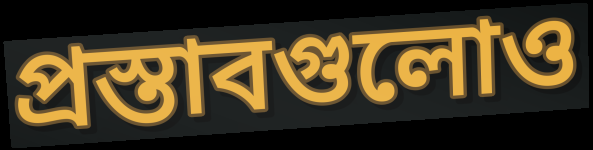
প্রস্তাবগুলোও